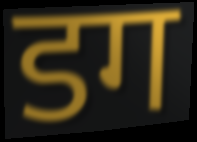
डग